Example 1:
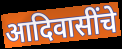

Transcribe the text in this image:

आदिवासींचे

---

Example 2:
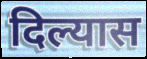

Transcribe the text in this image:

दिल्यास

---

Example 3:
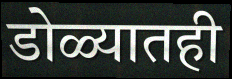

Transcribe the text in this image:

डोळ्यातही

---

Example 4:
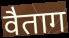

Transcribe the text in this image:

वैताग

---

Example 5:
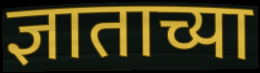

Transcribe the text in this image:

ज्ञाताच्या